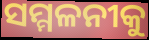
ସମ୍ମଳନୀକୁ